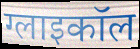
ग्लाइकॉल